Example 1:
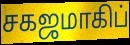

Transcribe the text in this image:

சகஜமாகிப்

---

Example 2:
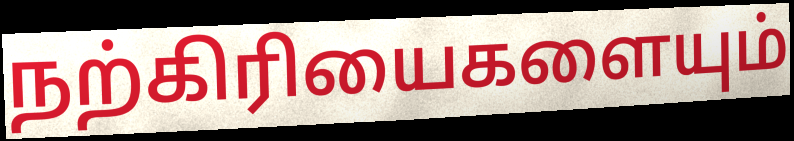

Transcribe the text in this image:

நற்கிரியைகளையும்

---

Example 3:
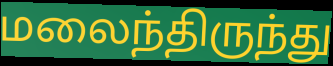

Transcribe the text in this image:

மலைந்திருந்து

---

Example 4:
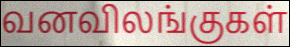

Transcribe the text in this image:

வனவிலங்குகள்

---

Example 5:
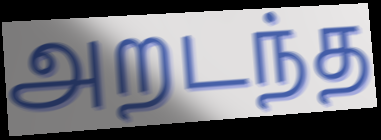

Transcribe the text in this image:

அறடந்த